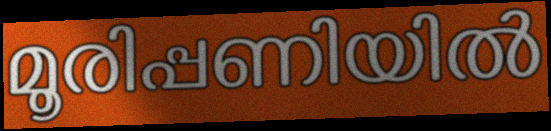
മൂരിപ്പണിയിൽ